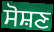
ਸੋਸ਼ਣ